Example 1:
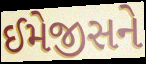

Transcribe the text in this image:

ઈમેજીસને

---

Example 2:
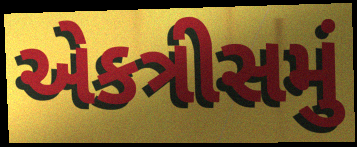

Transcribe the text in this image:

એકત્રીસમું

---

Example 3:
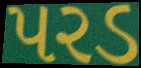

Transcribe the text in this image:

પરડ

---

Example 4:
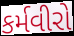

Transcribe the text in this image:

કર્મવીરો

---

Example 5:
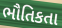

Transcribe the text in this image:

ભૌતિકતા